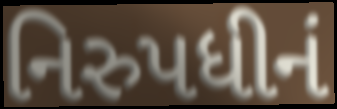
નિરુપધીનં